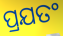
ପ୍ରଯତଂ